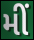
મીં